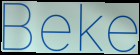
Beke